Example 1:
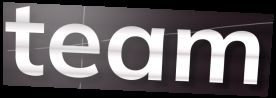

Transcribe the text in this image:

team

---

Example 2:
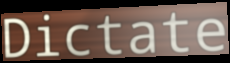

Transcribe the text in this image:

Dictate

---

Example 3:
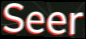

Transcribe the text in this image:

Seer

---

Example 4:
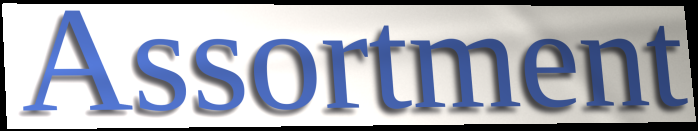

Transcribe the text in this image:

Assortment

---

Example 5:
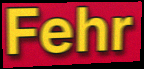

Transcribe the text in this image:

Fehr